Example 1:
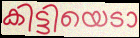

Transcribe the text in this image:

കിട്ടിയെടാ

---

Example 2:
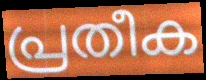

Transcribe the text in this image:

പ്രതീക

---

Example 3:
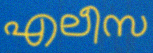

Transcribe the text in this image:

എലീസ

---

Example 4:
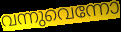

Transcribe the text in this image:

വന്നുവെന്നോ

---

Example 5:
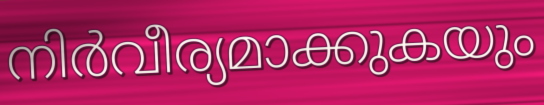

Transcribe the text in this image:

നിർവീര്യമാക്കുകയും